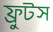
ফ্রুটস